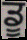
ਡੂ